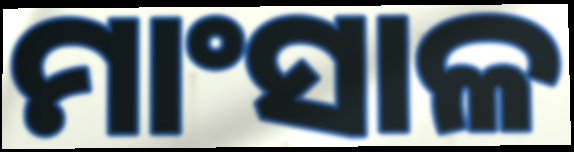
ମାଂସାଳ